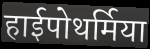
हाईपोथर्मिया